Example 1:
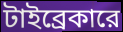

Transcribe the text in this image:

টাইব্রেকারে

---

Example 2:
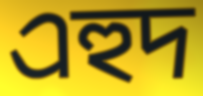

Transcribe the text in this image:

এহুদ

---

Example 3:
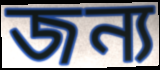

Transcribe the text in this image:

জন্য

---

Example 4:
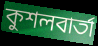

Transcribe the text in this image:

কুশলবার্তা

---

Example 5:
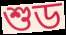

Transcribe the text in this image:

শুড